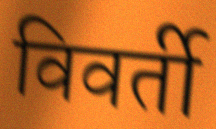
विवर्ती